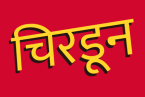
चिरडून